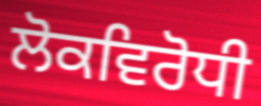
ਲੋਕਵਿਰੋਧੀ